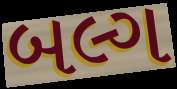
બલ્ગ